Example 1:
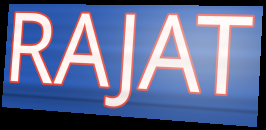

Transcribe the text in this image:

RAJAT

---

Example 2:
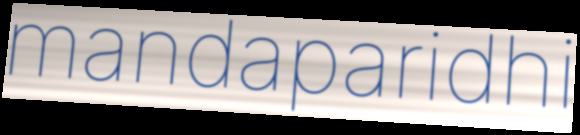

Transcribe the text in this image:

mandaparidhi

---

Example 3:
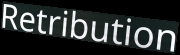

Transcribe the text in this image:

Retribution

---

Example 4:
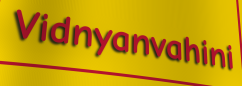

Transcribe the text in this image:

Vidnyanvahini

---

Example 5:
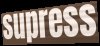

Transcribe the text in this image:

supress